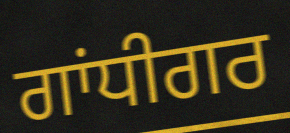
ਗਾਂਧੀਗਰ